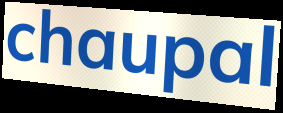
chaupal